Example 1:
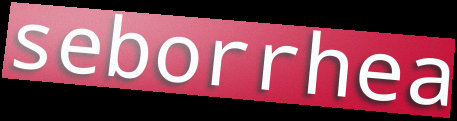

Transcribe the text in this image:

seborrhea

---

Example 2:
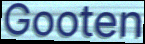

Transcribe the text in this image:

Gooten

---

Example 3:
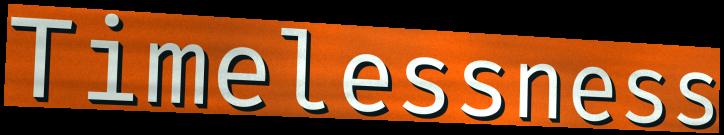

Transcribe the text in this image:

Timelessness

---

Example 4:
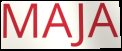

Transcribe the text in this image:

MAJA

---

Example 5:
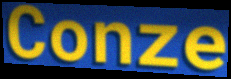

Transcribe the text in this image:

Conze